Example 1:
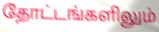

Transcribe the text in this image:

தோட்டங்களிலும்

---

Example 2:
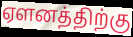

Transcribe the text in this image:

ஏளனத்திற்கு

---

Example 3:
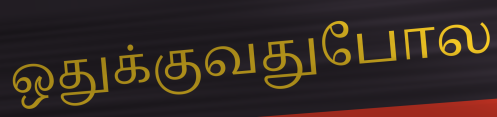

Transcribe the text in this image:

ஒதுக்குவதுபோல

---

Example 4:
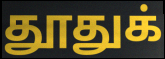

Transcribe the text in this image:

தூதுக்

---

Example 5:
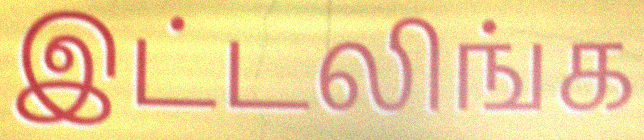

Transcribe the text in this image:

இட்டலிங்க